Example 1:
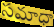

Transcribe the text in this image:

సమాధా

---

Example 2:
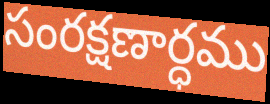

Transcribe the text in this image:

సంరక్షణార్ధము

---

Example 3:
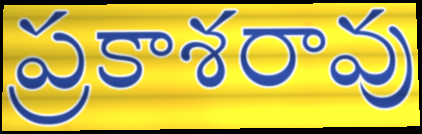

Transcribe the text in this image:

ప్రకాశరావు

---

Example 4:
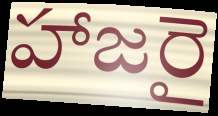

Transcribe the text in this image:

హాజరై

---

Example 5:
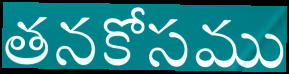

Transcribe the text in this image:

తనకోసము